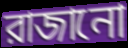
রাজানো